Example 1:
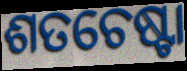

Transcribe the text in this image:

ଶତଚେଷ୍ଟା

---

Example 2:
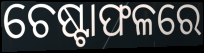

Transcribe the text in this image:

ଚେଷ୍ଟାଫଳରେ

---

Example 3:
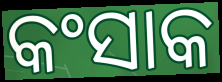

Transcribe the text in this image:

କଂସାକ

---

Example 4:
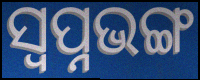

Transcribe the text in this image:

ସ୍ୱପ୍ନଭଙ୍ଗ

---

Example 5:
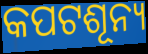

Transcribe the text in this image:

କପଟଶୂନ୍ୟ